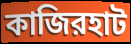
কাজিরহাট